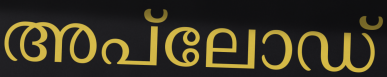
അപ്‌ലോഡ്